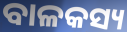
ବାଳକସ୍ୟ